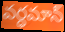
వర్ధమాన్